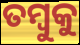
ତମ୍ବୁକୁ